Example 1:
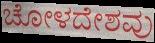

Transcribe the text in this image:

ಚೋಳದೇಶವು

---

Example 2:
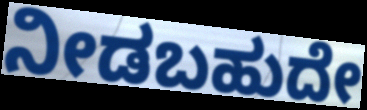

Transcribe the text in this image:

ನೀಡಬಹುದೇ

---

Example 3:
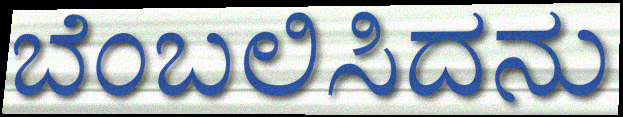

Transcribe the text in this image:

ಬೆಂಬಲಿಸಿದನು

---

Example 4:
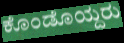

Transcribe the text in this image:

ಕೊಂಡೊಯ್ದರು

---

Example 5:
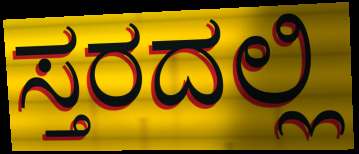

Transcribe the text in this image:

ಸ್ತರದಲ್ಲಿ